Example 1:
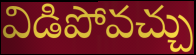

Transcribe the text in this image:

విడిపోవచ్చు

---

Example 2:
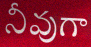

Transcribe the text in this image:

నీవుగా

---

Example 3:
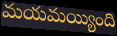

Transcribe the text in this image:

మయమయ్యింది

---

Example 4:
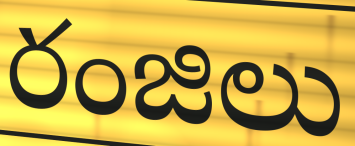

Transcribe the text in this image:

రంజిలు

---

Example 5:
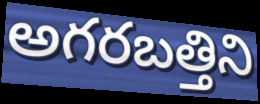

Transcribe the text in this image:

అగరబత్తిని